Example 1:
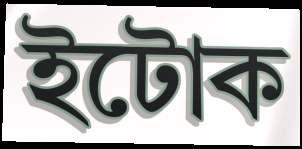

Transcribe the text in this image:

ইটোক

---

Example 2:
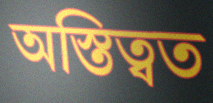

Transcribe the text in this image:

অস্তিত্বত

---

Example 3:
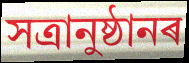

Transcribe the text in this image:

সত্ৰানুষ্ঠানৰ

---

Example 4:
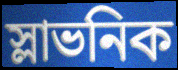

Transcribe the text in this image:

স্লাভনিক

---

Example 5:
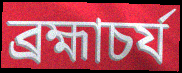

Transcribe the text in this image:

ব্ৰহ্মাচৰ্য